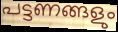
പട്ടണങ്ങളും